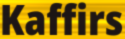
Kaffirs